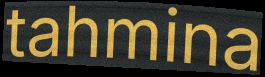
tahmina